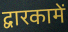
द्वारकामें